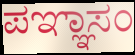
ಪಞ್ಞಾಸಂ